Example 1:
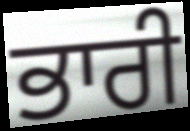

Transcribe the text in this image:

ਭਾਰੀ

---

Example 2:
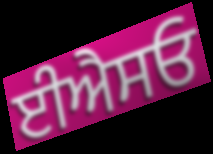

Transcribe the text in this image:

ਈਐਸਓ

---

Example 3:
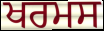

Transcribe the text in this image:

ਖਰਮਸ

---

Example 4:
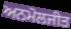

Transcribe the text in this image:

ਅਨਮੋਲਜੀਤ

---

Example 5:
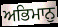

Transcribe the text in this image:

ਅਭਿਮਾਨੁ